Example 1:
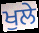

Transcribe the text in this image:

ਖੁਲੇ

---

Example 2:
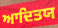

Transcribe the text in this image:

ਆਦਿਤਯ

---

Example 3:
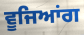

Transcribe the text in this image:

ਵੂਜਿਆਂਗ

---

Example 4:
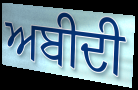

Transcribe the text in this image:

ਅਬੀਦੀ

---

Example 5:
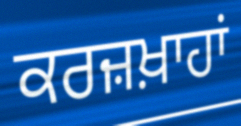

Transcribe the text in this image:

ਕਰਜ਼ਖ਼ਾਹਾਂ